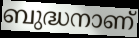
ബുദ്ധനാണ്